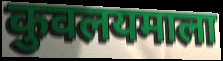
कुवलयमाला